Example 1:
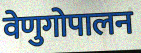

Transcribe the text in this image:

वेणुगोपालन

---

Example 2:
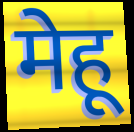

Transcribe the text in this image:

मेहू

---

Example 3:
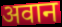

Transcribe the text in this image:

अवान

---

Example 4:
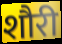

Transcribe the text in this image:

शौरी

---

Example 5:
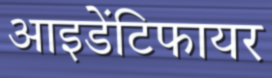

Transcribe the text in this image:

आइडेंटिफायर